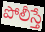
పోలీస్తే